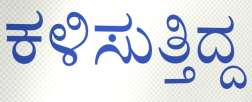
ಕಳಿಸುತ್ತಿದ್ದ